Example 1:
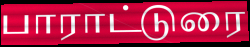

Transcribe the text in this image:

பாராட்டுரை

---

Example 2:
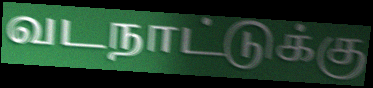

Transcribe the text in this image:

வடநாட்டுக்கு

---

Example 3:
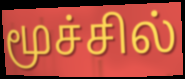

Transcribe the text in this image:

மூச்சில்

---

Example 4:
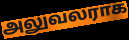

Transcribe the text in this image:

அலுவலராக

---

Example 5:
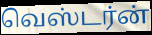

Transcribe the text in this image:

வெஸ்டர்ன்